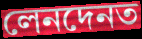
লেনদেনত